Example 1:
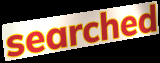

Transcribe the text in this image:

searched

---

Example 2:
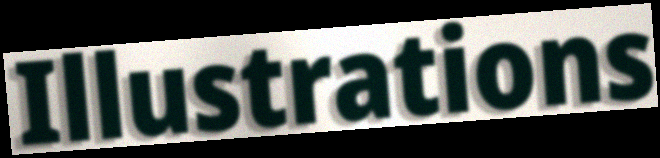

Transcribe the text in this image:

Illustrations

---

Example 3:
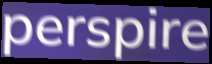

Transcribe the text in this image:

perspire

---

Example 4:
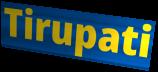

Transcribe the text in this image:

Tirupati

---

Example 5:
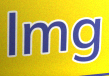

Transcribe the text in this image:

Img